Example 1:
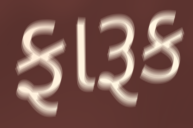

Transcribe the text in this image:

ફારૂક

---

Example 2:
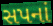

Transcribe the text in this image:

સપનાં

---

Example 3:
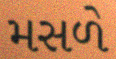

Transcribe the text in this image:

મસળે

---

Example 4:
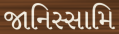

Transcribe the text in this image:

જાનિસ્સામિ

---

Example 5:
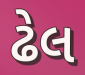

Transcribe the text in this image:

ઢેલ